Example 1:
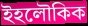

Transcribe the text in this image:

ইহলৌকিক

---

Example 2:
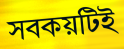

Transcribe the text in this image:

সবকয়টিই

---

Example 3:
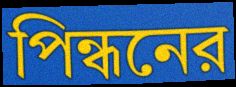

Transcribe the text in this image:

পিন্ধনের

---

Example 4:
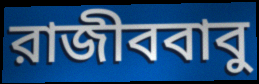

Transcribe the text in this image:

রাজীববাবু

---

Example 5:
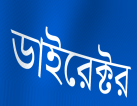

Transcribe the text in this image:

ডাইরেক্টর